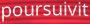
poursuivit